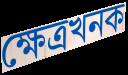
ক্ষেত্ৰখনক